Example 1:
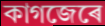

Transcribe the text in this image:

কাগজেৰে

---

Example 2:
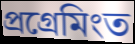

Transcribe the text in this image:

প্ৰগ্ৰেমিংত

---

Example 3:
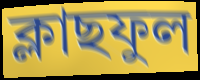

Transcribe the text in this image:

ক্লাছফুল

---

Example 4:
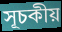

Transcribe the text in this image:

সূচকীয়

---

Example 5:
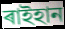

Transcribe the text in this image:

ৰাইহান